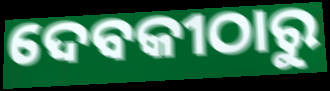
ଦେବକୀଠାରୁ